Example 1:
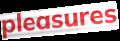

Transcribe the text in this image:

pleasures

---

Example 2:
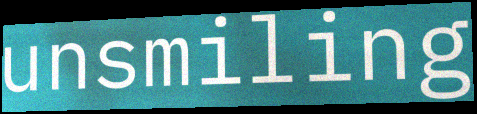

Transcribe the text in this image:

unsmiling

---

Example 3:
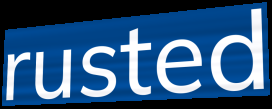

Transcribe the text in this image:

rusted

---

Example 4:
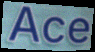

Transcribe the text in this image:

Ace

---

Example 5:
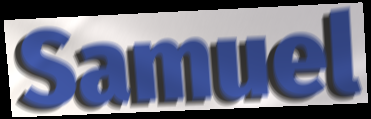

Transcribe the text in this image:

Samuel